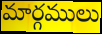
మార్గములు